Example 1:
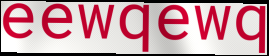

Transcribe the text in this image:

eewqewq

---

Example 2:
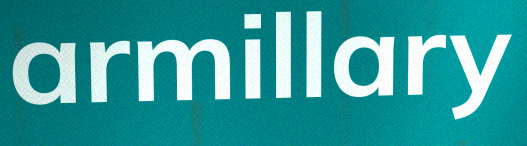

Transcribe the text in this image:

armillary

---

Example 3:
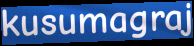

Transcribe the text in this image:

kusumagraj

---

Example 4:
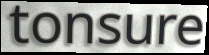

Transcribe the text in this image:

tonsure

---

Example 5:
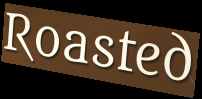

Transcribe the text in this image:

Roasted